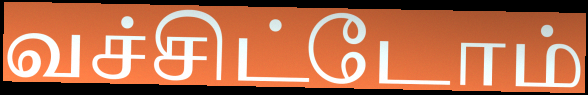
வச்சிட்டோம்